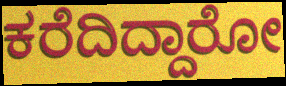
ಕರೆದಿದ್ದಾರೋ